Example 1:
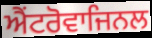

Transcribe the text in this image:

ਐਂਟਰੋਵਾਜਿਨਲ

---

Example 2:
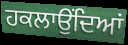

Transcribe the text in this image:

ਹਕਲਾਉਂਦਿਆਂ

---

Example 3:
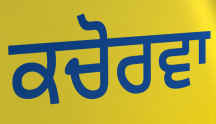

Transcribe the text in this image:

ਕਚੋਰਵਾ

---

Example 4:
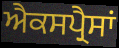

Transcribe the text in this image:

ਐਕਸਪ੍ਰੈਸਾਂ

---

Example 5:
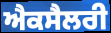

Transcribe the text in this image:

ਐਕਸੈਲਰੀ